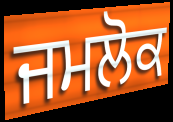
ਜਮਲੋਕ